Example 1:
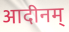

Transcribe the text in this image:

आदीनम्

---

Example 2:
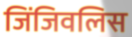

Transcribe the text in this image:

जिंजिवलिस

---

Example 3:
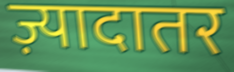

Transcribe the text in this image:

ज़्यादातर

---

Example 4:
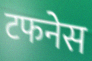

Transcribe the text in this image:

टफनेस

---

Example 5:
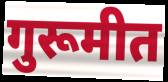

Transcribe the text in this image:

गुरूमीत